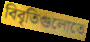
বিবৃতিগুলোতে